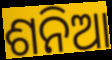
ଶନିଆ